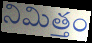
నిమిత్తం